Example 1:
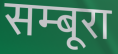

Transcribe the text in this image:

सम्बूरा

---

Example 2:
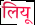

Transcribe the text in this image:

लियू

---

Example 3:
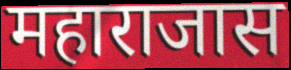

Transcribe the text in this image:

महाराजास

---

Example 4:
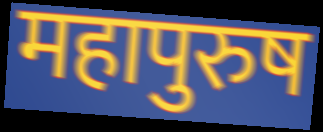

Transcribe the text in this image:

महापुरुष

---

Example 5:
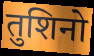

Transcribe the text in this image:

तुशिनो